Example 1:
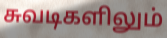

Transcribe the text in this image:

சுவடிகளிலும்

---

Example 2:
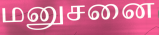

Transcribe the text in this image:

மனுசனை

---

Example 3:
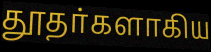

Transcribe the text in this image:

தூதர்களாகிய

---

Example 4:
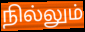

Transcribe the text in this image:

நில்லும்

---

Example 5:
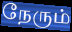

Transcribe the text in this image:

நேரும்